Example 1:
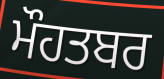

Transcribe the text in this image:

ਮੌਹਤਬਰ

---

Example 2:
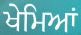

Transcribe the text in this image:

ਖੇਮਿਆਂ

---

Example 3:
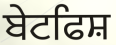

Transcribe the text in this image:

ਬੇਟਫਿਸ਼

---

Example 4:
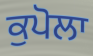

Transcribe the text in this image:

ਕੁਪੋਲਾ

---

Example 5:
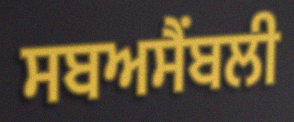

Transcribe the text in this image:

ਸਬਅਸੈਂਬਲੀ